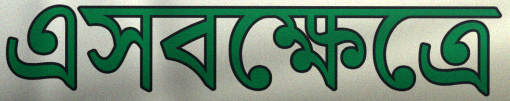
এসবক্ষেত্রে